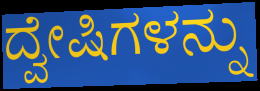
ದ್ವೇಷಿಗಳನ್ನು